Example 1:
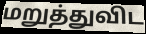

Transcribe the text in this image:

மறுத்துவிட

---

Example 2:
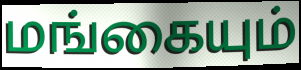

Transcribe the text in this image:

மங்கையும்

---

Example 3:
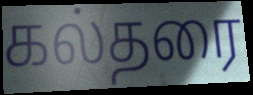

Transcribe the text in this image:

கல்தரை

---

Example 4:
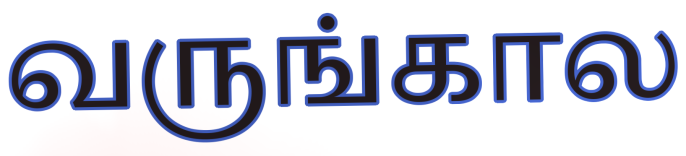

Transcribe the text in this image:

வருங்கால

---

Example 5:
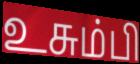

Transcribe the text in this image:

உசும்பி